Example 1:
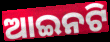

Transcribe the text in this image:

ଆଇନଟି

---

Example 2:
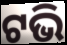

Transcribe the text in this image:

ଟଭି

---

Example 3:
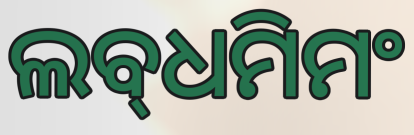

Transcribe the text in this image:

ଲବ୍‌ଧମିମଂ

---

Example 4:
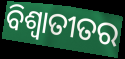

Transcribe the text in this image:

ବିଶ୍ଵାତୀତର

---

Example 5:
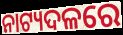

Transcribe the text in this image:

ନାଟ୍ୟଦଳରେ